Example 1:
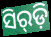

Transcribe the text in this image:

ସିର୍‌ଡ଼ି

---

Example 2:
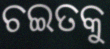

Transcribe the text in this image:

ଚଇତକୁ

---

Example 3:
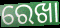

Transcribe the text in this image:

ରେଖା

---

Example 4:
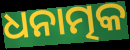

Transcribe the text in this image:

ଧନାତ୍ମକ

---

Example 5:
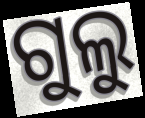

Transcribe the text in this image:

ଗୁଲୁ